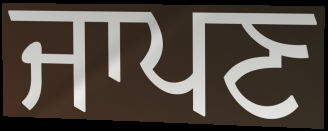
ਜਾਪਣ